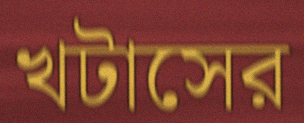
খটাসের